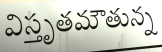
విస్తృతమౌతున్న